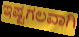
ಇಷ್ಟಗಲವಾಗಿ